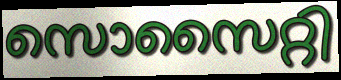
സൊസൈറ്റി